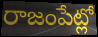
రాజంపేట్లో